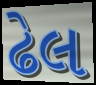
ઢેલ